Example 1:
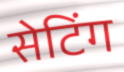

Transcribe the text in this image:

सेटिंग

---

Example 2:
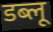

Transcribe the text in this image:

डब्लू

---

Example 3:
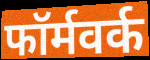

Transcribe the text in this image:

फॉर्मवर्क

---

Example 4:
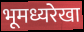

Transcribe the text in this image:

भूमध्यरेखा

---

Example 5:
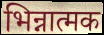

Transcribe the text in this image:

भिन्नात्मक